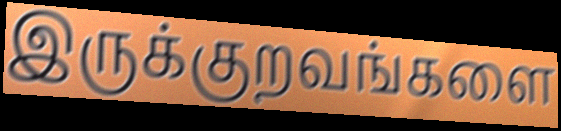
இருக்குறவங்களை